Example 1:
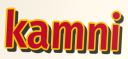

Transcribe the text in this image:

kamni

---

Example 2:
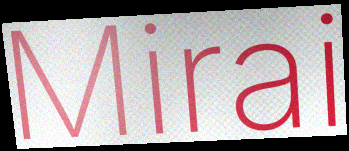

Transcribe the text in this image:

Mirai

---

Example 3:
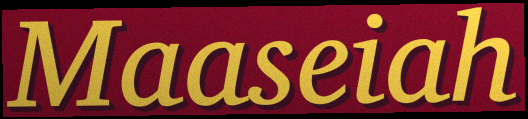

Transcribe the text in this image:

Maaseiah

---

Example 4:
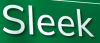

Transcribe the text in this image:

Sleek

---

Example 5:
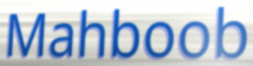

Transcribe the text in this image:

Mahboob